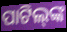
ପାଟିଲ୍‌ଙ୍କ